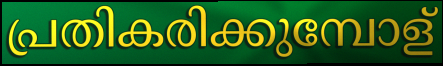
പ്രതികരിക്കുമ്പോള്